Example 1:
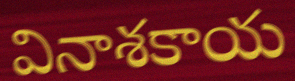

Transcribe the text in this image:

వినాశకాయ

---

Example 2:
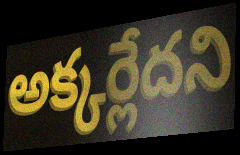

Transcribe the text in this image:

అక్కర్లేదని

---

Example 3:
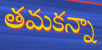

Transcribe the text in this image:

తమకన్నా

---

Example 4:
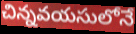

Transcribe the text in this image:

చిన్నవయసులోనే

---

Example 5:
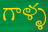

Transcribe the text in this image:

గాళ్ళ